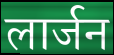
लार्जन